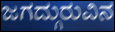
ಜಗದ್ಗುರುವಿನ